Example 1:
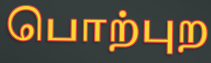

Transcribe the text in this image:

பொற்புற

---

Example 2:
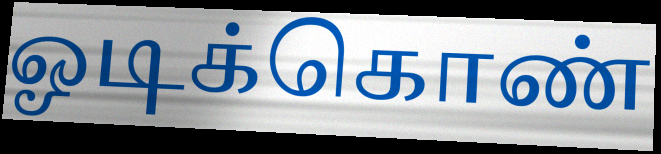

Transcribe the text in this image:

ஓடிக்கொண்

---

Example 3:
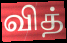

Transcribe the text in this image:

வித்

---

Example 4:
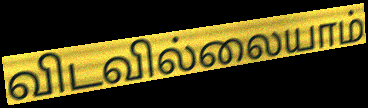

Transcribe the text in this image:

விடவில்லையாம்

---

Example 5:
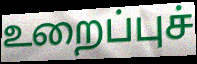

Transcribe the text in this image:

உறைப்புச்